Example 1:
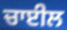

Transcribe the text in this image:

ਚਾਈਲ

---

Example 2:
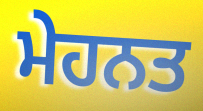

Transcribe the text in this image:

ਮੇਹਨਤ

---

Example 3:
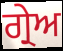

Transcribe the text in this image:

ਗ੍ਰੇਅ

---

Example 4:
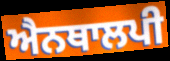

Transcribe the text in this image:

ਐਨਥਾਲਪੀ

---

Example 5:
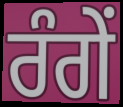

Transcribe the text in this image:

ਰੰਗੇਂ